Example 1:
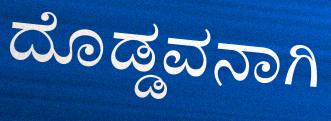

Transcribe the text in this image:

ದೊಡ್ಡವನಾಗಿ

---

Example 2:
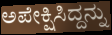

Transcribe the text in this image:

ಅಪೇಕ್ಷಿಸಿದ್ದನ್ನು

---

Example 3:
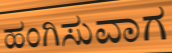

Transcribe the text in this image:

ಹಂಗಿಸುವಾಗ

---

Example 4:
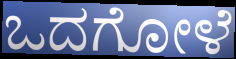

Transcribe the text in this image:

ಒದಗೋಳೆ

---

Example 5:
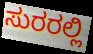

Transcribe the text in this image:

ಸುರರಲ್ಲಿ